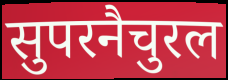
सुपरनैचुरल